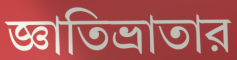
জ্ঞাতিভ্রাতার